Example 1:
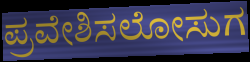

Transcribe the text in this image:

ಪ್ರವೇಶಿಸಲೋಸುಗ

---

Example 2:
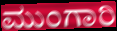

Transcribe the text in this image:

ಮುಂಗಾರಿ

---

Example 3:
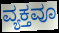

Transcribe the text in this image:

ವ್ಯಕ್ತವೂ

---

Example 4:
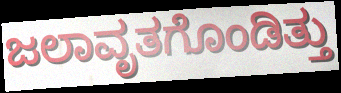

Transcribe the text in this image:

ಜಲಾವೃತಗೊಂಡಿತ್ತು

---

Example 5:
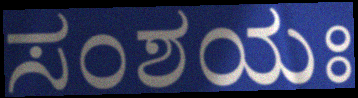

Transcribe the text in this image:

ಸಂಶಯಃ